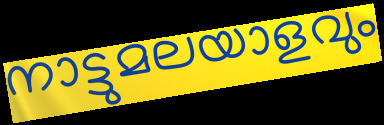
നാട്ടുമലയാളവും